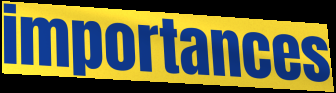
importances